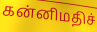
கன்னிமதிச்